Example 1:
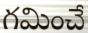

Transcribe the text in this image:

గమించే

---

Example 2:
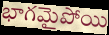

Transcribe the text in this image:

భాగమైపోయి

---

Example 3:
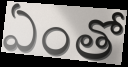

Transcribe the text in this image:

ఏంతో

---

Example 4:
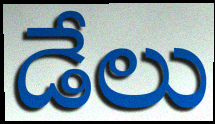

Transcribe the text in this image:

డేలు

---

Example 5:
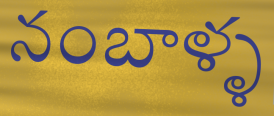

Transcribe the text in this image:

నంబాళ్ళ